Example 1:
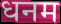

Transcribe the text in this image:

धनम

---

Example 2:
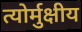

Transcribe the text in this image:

त्योर्मुक्षीय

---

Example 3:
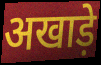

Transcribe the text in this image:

अखाड़े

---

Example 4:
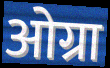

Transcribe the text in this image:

ओग्रा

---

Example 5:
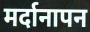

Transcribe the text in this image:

मर्दानापन